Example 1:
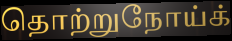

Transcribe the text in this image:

தொற்றுநோய்க்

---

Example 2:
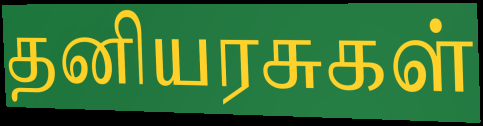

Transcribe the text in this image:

தனியரசுகள்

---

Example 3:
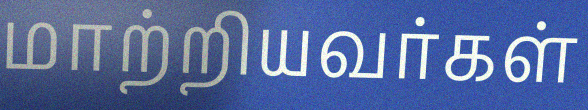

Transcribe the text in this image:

மாற்றியவர்கள்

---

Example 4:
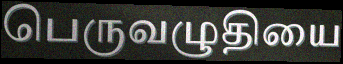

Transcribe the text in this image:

பெருவழுதியை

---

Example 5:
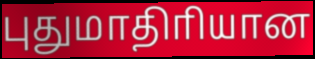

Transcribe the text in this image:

புதுமாதிரியான